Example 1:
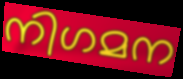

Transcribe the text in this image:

നിഗമന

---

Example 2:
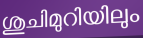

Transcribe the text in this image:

ശുചിമുറിയിലും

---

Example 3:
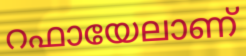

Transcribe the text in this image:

റഫായേലാണ്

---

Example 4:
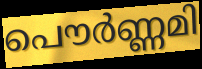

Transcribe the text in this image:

പൌർണ്ണമി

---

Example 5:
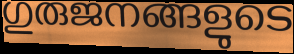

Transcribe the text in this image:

ഗുരുജനങ്ങളുടെ